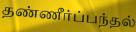
தண்ணீர்ப்பந்தல்